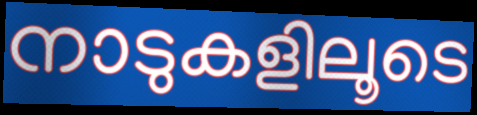
നാടുകളിലൂടെ